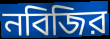
নবিজির